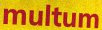
multum